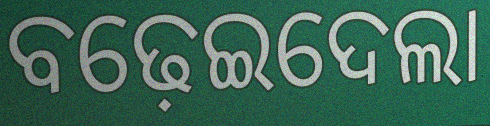
ବଢ଼େଇଦେଲା